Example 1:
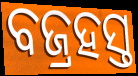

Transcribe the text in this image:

ବଜ୍ରହସ୍ତ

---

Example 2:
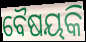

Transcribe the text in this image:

ବୈଷୟକି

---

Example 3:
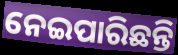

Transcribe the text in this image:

ନେଇପାରିଛନ୍ତି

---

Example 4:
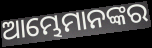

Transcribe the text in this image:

ଆମ୍ଭେମାନଙ୍କର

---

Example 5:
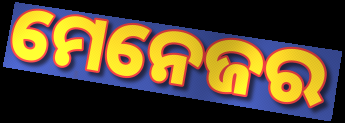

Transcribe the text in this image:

ମେନେଜର